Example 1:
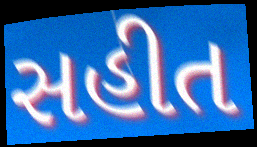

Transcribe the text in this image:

સહીત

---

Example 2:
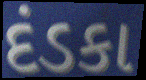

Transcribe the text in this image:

દંડકા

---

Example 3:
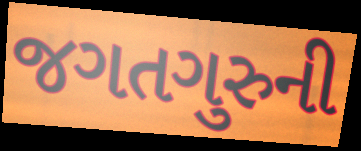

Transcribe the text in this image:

જગતગુરુની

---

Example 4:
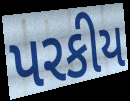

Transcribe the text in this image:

પરકીય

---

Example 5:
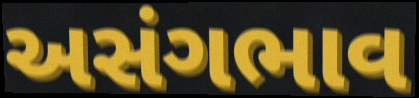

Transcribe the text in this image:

અસંગભાવ